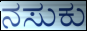
ನಸುಕು